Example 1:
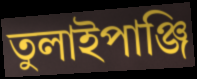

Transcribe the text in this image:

তুলাইপাঞ্জি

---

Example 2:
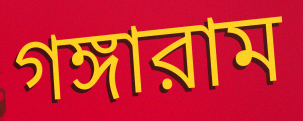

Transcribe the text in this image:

গঙ্গারাম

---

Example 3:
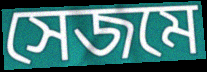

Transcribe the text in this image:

সেজমে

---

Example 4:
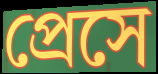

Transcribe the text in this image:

প্রেসে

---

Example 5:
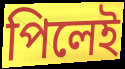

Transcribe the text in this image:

পিলেই